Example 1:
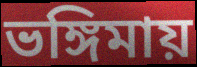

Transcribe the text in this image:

ভঙ্গিমায়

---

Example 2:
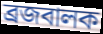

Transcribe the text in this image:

ব্রজবালক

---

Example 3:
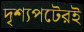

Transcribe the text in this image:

দৃশ্যপটেরই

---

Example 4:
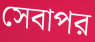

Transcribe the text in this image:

সেবাপর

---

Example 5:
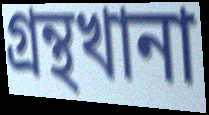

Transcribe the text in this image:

গ্রন্থখানা